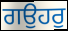
ਗਉਹਰੁ